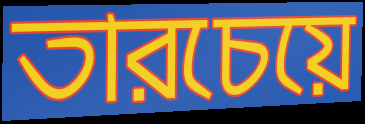
তারচেয়ে